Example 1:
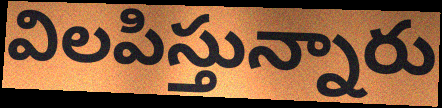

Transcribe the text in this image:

విలపిస్తున్నారు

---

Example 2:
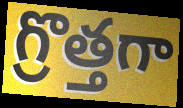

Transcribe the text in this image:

గ్రొత్తగా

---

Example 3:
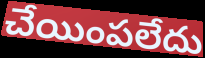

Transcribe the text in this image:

చేయింపలేదు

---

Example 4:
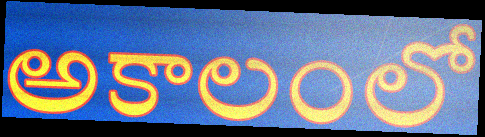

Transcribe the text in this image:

అకాలంలో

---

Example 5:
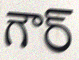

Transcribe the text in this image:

గౌర్